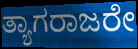
ತ್ಯಾಗರಾಜರೇ